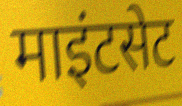
माइंटसेट